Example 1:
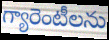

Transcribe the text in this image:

గ్యారెంటీలను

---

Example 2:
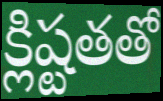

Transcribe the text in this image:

క్లిష్టతతో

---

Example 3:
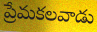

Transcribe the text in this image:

ప్రేమకలవాడు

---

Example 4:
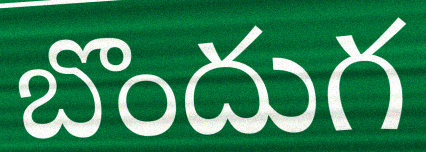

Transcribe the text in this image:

బొందుగ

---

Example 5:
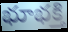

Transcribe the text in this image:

భూభక్తి